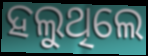
ହଲୁଥିଲେ